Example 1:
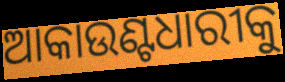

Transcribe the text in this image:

ଆକାଉଣ୍ଟଧାରୀକୁ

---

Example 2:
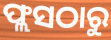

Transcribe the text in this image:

ଫ୍ଲସଠାରୁ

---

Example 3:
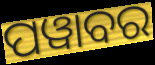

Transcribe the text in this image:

ପୱାବର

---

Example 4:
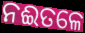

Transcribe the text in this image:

ନଈତଳେ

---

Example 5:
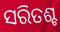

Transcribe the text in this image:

ସରିତଶ୍ଚ